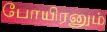
போயிரனும்